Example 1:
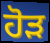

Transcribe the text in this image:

ਹੋੜ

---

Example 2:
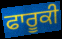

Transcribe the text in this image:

ਫਾਰੂਕੀ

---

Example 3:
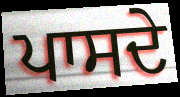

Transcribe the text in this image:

ਪਾਸਦੇ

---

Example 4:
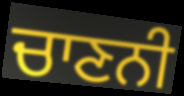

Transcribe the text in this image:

ਚਾਣਨੀ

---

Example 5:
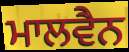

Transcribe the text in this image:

ਮਾਲਵੈਨ